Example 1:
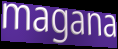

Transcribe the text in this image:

magana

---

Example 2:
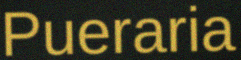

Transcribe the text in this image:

Pueraria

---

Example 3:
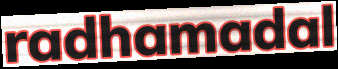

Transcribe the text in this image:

radhamadal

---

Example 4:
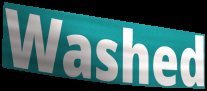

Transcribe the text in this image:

Washed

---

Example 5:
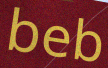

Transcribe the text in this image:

beb